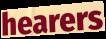
hearers